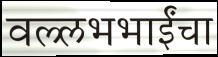
वल्लभभाईंचा